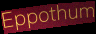
Eppothum